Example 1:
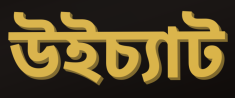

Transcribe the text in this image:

উইচ্যাট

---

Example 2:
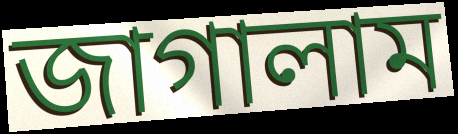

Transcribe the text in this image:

জাগালাম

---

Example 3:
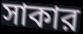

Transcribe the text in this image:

সাকার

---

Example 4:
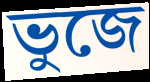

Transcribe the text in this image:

ভুজে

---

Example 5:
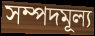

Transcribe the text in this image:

সম্পদমূল্য